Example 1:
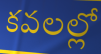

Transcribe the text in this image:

కవలల్లో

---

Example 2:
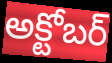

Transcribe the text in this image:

అక్టోబర్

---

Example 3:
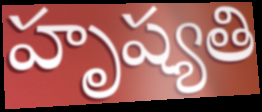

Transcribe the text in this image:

హృష్యతి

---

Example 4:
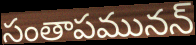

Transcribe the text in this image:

సంతాపమునన్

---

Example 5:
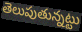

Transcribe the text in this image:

తెలుపుతున్నట్టు